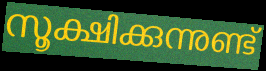
സൂക്ഷിക്കുന്നുണ്ട്